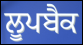
ਲੂਪਬੈਕ